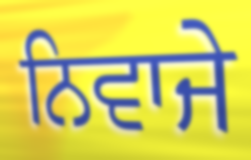
ਨਿਵਾਜੇ